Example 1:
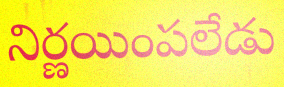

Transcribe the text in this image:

నిర్ణయింపలేడు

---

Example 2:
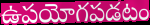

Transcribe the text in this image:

ఉపయోగపడటం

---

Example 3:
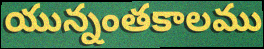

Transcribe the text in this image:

యున్నంతకాలము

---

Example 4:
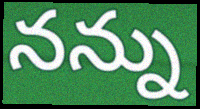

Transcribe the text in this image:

నన్ను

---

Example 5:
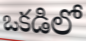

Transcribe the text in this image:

ఒకడిలో